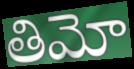
తిమో